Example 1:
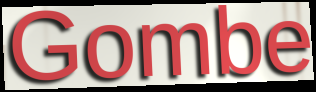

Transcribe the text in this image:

Gombe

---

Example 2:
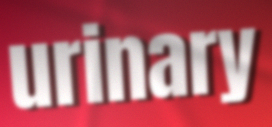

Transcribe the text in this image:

urinary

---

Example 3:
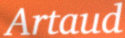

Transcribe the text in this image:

Artaud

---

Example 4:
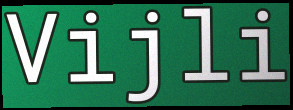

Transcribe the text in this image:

Vijli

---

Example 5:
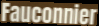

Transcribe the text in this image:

Fauconnier